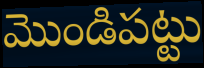
మొండిపట్టు